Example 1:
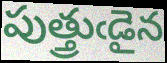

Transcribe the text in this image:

పుత్త్రుఁడైన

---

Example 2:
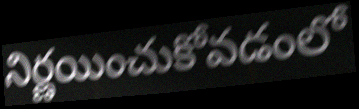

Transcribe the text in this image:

నిర్ణయించుకోవడంలో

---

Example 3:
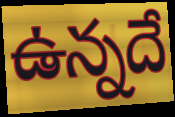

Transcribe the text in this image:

ఉన్నదే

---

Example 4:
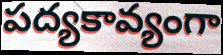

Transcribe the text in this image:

పద్యకావ్యంగా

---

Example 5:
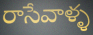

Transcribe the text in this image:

రాసేవాళ్ళ